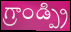
గ్రాండ్ప్రి